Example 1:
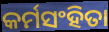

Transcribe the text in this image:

କର୍ମସଂହିତା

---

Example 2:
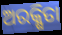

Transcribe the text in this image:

ଅରକ୍ଷିତା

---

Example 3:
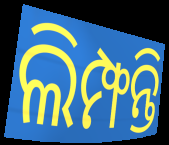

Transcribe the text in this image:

ଲିମ୍ଫନ୍ତି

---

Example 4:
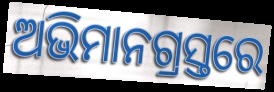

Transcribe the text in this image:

ଅଭିମାନଗ୍ରସ୍ତରେ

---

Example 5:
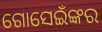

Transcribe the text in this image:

ଗୋସେଇଁଙ୍କର